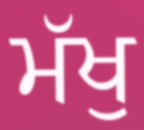
ਮੱਖੁ